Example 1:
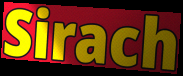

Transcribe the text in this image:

Sirach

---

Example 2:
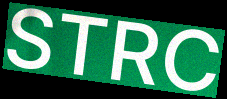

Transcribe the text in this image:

STRC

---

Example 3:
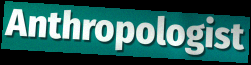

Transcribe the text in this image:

Anthropologist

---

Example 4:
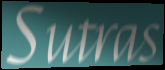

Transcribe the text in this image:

Sutras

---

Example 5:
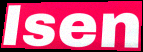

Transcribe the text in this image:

Isen